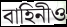
বাহিনীও